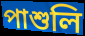
পাশুলি